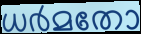
ധർമതോ